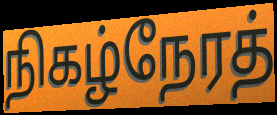
நிகழ்நேரத்